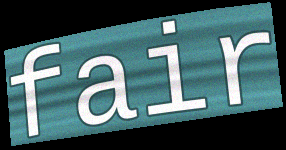
fair